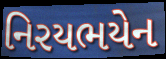
નિરયભયેન